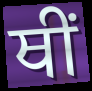
ਥੀਂ